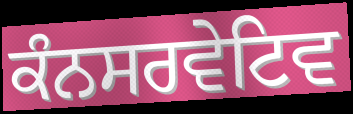
ਕੰਨਸਰਵੇਟਿਵ